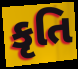
કૃતિ